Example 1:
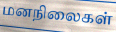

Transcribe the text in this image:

மனநிலைகள்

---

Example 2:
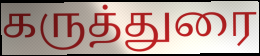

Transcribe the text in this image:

கருத்துரை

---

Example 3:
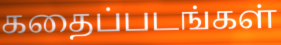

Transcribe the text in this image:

கதைப்படங்கள்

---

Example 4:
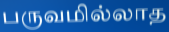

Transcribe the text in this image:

பருவமில்லாத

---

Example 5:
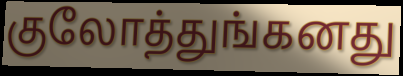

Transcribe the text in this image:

குலோத்துங்கனது